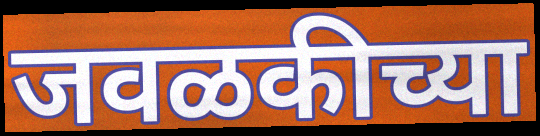
जवळकीच्या